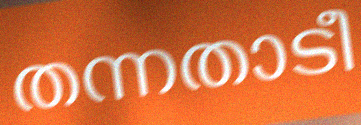
തന്നതാടീ